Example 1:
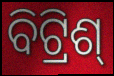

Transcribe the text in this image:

ବିଟ୍ରିଶ୍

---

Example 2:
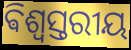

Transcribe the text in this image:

ଵିଶ୍ୱସ୍ତରୀୟ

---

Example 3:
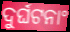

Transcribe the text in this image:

ଦୁର୍ଘଟନାଂ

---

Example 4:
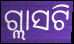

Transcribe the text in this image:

ଗ୍ଲାସଟି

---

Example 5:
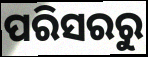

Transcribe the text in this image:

ପରିସରରୁ